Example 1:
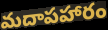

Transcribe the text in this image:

మదాపహారం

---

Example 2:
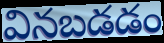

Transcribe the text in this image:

వినబడడం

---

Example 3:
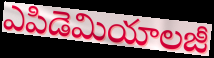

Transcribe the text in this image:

ఎపిడెమియాలజీ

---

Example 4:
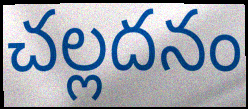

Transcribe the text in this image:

చల్లదనం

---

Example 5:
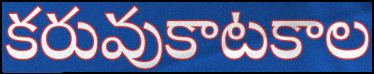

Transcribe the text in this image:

కరువుకాటకాల